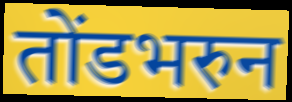
तोंडभरुन